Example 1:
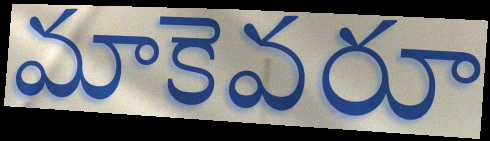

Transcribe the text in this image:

మాకెవరూ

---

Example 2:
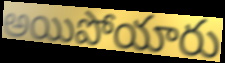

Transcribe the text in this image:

అయిపోయారు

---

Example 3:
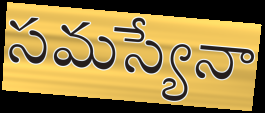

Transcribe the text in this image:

సమస్యేనా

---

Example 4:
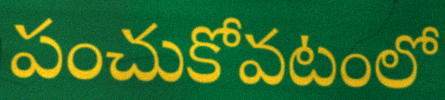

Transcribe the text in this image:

పంచుకోవటంలో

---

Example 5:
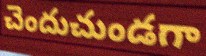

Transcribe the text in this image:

చెందుచుండగా